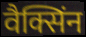
वैक्सिंन